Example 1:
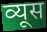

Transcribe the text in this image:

व्यूस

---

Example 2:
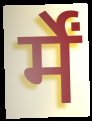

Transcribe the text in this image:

र्में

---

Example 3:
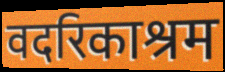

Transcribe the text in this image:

वदरिकाश्रम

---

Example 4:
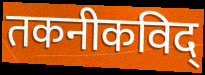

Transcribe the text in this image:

तकनीकविद्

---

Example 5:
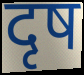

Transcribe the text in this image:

दृष